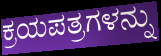
ಕ್ರಯಪತ್ರಗಳನ್ನು